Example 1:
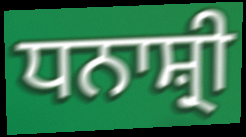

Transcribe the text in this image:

ਧਨਾਸ਼੍ਰੀ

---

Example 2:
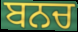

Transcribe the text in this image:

ਬਨਚ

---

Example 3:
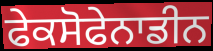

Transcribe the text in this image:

ਫੇਕਸੋਫੇਨਾਡੀਨ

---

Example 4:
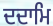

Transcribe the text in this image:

ਦਦਾਮਿ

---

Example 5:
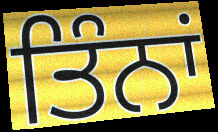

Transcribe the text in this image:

ਤਿੰਨਾਂ